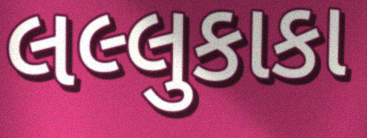
લલ્લુકાકા